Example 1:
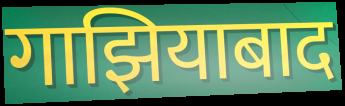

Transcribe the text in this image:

गाझियाबाद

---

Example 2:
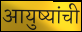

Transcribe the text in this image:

आयुष्यांची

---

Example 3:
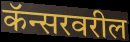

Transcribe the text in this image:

कॅन्सरवरील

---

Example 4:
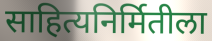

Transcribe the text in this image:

साहित्यनिर्मितीला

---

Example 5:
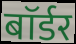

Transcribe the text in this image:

बॉर्डर